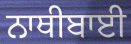
ਨਾਥੀਬਾਈ